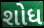
શોધ